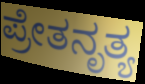
ಪ್ರೇತನೃತ್ಯ